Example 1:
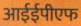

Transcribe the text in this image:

आईईपीएफ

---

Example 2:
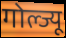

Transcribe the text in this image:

गोल्ज्यू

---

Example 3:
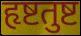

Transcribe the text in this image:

हृष्टतुष्ट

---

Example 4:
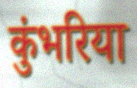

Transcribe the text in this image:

कुंभरिया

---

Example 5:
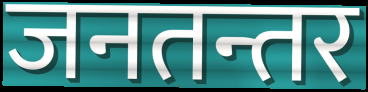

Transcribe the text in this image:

जनतन्तर